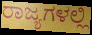
ರಾಜ್ಯಗಳಲ್ಲಿ